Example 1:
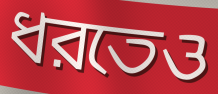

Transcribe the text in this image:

ধরতেও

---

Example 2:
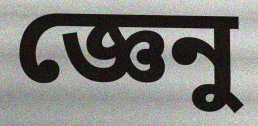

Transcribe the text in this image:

জ্ঞেনু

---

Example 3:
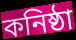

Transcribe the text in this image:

কনিষ্ঠা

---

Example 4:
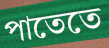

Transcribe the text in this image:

পাতেতে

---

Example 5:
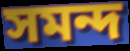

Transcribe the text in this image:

সমন্দ